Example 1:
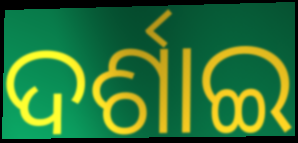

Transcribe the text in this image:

ଦର୍ଶାଇ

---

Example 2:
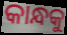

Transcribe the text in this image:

କାନ୍ଧକୁ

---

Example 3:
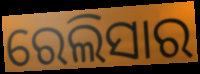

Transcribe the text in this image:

ରେଲିସାର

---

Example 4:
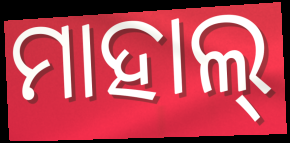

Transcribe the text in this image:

ମାହାଲ୍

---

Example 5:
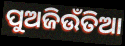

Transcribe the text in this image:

ପୁଅଜିଉଁତିଆ